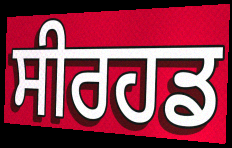
ਸੀਰਹਡ